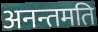
अनन्तमति